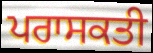
ਪਰਾਸਕਤੀ